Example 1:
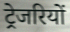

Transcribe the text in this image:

ट्रेजरियों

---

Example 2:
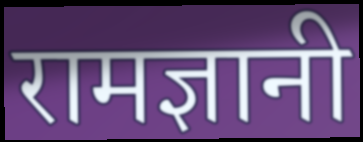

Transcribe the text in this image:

रामज्ञानी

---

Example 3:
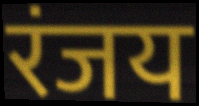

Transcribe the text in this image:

रंजय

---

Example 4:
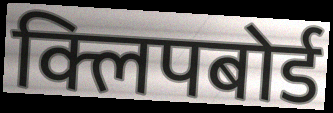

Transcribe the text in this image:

क्लिपबोर्ड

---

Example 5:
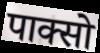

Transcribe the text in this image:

पाक्सो